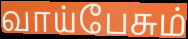
வாய்பேசும்